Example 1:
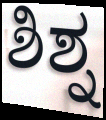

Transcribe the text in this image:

ಶಿಶ್ನ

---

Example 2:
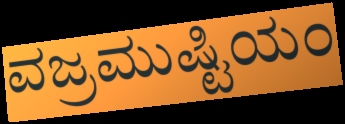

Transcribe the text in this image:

ವಜ್ರಮುಷ್ಟಿಯಂ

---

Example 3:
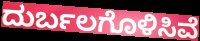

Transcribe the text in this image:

ದುರ್ಬಲಗೊಳಿಸಿವೆ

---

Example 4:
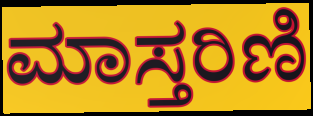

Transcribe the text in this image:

ಮಾಸ್ತರಿಣಿ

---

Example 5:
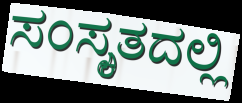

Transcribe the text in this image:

ಸಂಸ್ಕೃತದಲ್ಲಿ